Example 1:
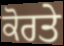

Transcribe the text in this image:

ਕੋਰਤੇ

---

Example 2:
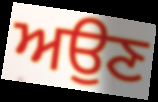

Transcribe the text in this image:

ਅਉਣ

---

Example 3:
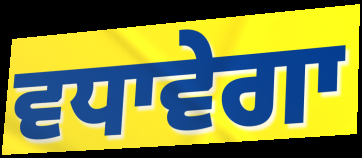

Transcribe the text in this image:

ਵਧਾਵੇਗਾ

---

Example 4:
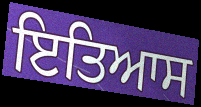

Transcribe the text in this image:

ਇਤਿਆਸ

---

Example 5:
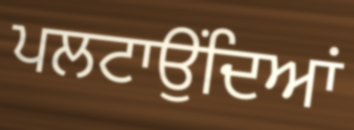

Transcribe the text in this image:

ਪਲਟਾਉਂਦਿਆਂ